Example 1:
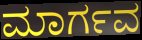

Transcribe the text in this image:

ಮಾರ್ಗವ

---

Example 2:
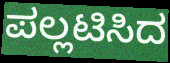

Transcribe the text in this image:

ಪಲ್ಲಟಿಸಿದ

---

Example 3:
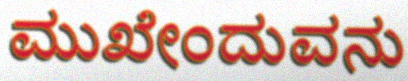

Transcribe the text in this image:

ಮುಖೇಂದುವನು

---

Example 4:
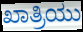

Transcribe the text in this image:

ಖಾತ್ರಿಯು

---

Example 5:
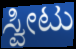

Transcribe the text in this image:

ಸ್ವೀಟು